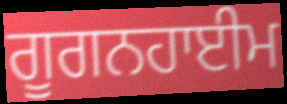
ਗੂਗਨਹਾਈਮ